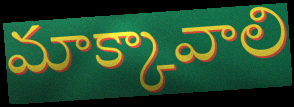
మాక్కావాలి